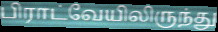
பிராட்வேயிலிருந்து